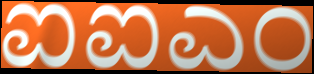
ಐಐಎಂ